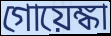
গোয়েঙ্কা